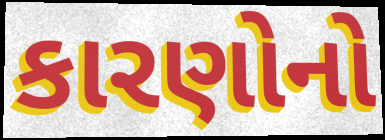
કારણોનો